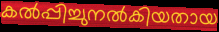
കൽപ്പിച്ചുനൽകിയതായ